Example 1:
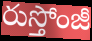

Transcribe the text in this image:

రుస్తోంజీ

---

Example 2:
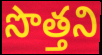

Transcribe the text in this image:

సొత్తని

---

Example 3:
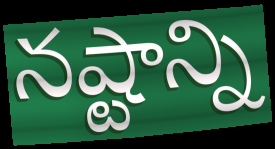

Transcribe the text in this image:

నష్టాన్ని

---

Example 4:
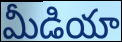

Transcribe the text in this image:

మీడియా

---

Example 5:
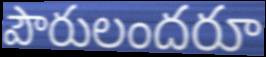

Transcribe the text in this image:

పౌరులందరూ